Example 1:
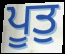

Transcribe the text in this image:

ਪੂਤੁ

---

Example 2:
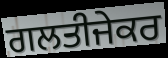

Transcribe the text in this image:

ਗਲਤੀਜੇਕਰ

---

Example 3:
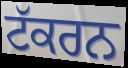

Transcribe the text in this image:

ਟੱਕਰਨ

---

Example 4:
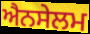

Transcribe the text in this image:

ਐਨਸੇਲਮ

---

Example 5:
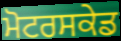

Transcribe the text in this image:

ਮੋਟਰਸਕੇਡ